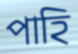
পাহি